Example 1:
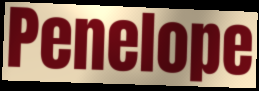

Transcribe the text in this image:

Penelope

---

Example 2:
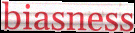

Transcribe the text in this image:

biasness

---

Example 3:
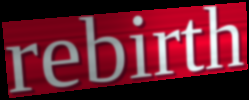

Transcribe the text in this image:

rebirth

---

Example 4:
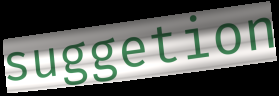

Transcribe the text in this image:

suggetion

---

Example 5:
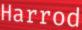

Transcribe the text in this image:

Harrod